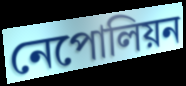
নেপোলিয়ন